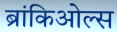
ब्रांकिओल्स